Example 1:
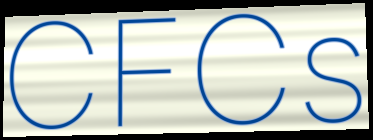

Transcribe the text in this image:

CFCs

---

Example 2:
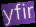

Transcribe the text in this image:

yfir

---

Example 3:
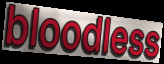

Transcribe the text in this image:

bloodless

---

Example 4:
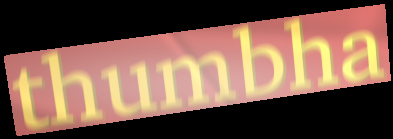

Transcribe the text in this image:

thumbha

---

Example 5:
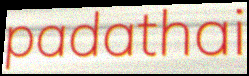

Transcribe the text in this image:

padathai